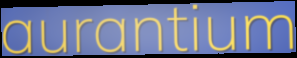
aurantium